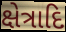
ક્ષેત્રાદિ